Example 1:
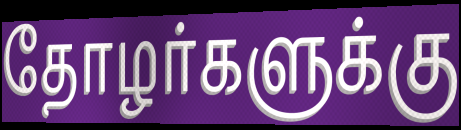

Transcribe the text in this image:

தோழர்களுக்கு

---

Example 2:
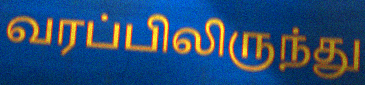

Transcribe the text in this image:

வரப்பிலிருந்து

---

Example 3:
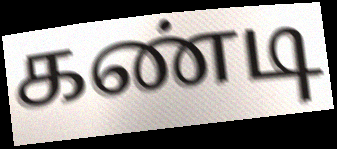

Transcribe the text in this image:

கண்டி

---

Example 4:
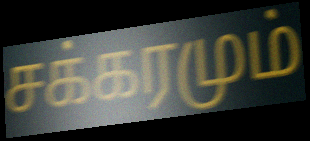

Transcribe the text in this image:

சக்கரமும்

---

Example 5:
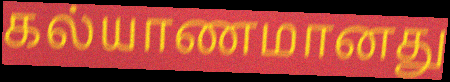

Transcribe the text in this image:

கல்யாணமானது